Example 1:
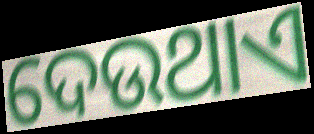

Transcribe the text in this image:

ଦେଉଥାଏ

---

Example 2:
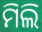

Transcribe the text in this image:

ମିଲି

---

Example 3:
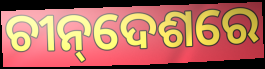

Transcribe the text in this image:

ଚୀନ୍‌ଦେଶରେ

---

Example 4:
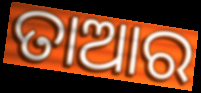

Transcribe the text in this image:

ତାଆର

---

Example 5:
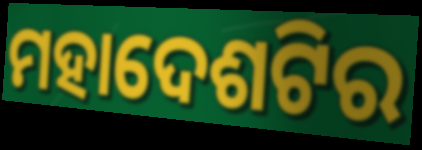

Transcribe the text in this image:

ମହାଦେଶଟିର